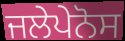
ਜਲੇਪੇਨੋਸ